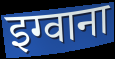
इग्वाना